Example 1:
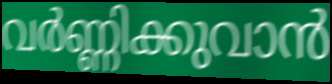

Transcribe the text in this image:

വർണ്ണിക്കുവാൻ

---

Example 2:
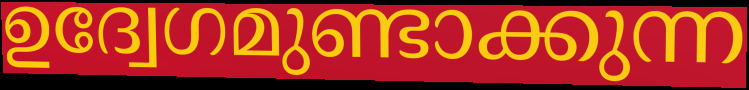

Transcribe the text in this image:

ഉദ്വേഗമുണ്ടാക്കുന്ന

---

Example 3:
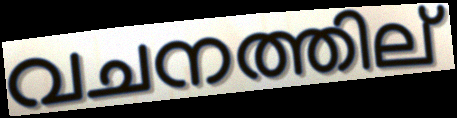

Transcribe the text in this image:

വചനത്തില്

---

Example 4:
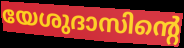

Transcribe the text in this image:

യേശുദാസിന്റെ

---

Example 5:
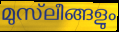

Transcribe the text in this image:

മുസ്‌ലീങ്ങളും